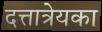
दत्तात्रेयका